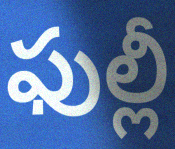
ఫుల్లీ